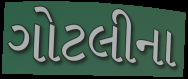
ગોટલીના